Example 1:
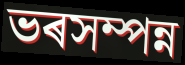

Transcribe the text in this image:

ভৰসম্পন্ন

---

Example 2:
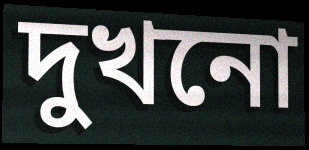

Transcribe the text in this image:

দুখনো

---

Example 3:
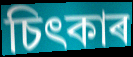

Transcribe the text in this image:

চিৎকাৰ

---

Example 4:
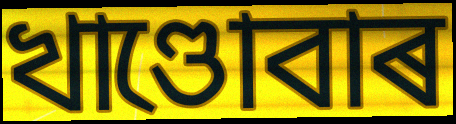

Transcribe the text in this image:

খাণ্ডোবাৰ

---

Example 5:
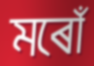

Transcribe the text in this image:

মৰোঁ